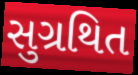
સુગ્રથિત